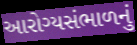
આરોગ્યસંભાળનું